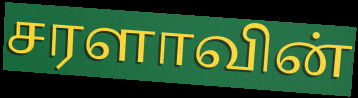
சரளாவின்